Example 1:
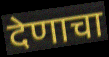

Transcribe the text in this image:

देणाचा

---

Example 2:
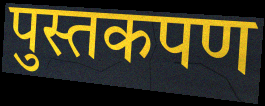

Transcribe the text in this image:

पुस्तकपण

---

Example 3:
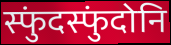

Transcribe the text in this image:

स्फुंदस्फुंदोनि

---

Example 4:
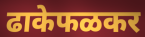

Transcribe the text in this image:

ढाकेफळकर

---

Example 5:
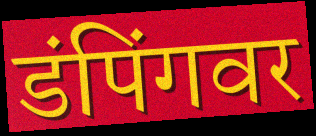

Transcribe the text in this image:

डंपिंगवर